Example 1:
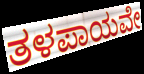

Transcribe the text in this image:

ತಳಪಾಯವೇ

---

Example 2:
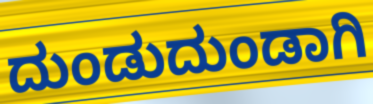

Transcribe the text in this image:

ದುಂಡುದುಂಡಾಗಿ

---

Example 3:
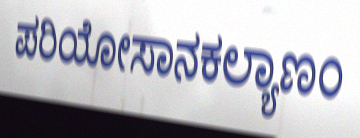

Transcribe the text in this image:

ಪರಿಯೋಸಾನಕಲ್ಯಾಣಂ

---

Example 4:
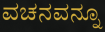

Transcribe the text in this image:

ವಚನವನ್ನೂ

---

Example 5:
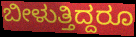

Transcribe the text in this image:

ಬೀಳುತ್ತಿದ್ದರೂ